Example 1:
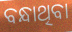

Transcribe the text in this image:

ବନ୍ଧାଥିବା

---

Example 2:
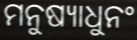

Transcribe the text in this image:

ମନୁଷ୍ୟାଧୁନଂ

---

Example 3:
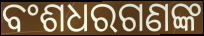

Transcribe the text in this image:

ବଂଶଧରଗଣଙ୍କ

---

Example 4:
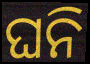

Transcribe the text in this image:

ଘନି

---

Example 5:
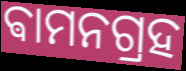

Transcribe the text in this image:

ଵାମନଗ୍ରହ